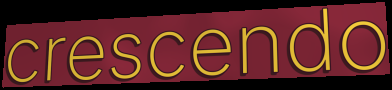
crescendo